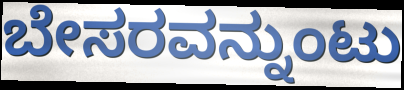
ಬೇಸರವನ್ನುಂಟು